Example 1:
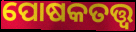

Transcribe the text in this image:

ପୋଷକତତ୍ତ୍ବ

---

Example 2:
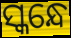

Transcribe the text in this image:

ସ୍କନ୍ଧେ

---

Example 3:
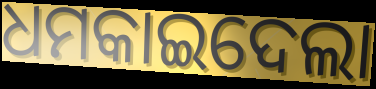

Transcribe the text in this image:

ଧମକାଇଦେଲା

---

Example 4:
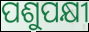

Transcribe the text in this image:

ପଶୁପକ୍ଷୀ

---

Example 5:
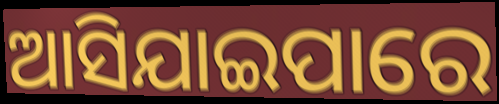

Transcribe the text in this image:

ଆସିଯାଇପାରେ